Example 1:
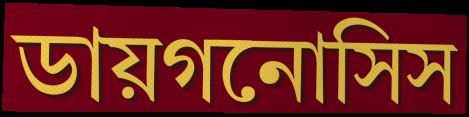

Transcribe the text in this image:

ডায়গনোসিস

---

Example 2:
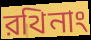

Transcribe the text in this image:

রথিনাং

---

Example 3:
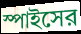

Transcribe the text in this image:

স্পাইসের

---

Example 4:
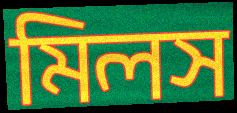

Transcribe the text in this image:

মিলস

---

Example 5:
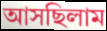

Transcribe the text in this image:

আসছিলাম